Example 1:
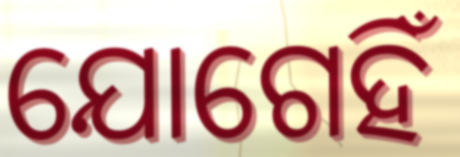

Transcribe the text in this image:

ଯୋଗେହିଁ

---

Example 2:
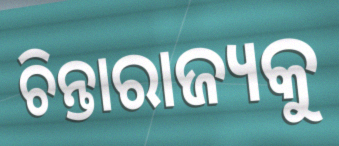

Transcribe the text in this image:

ଚିନ୍ତାରାଜ୍ୟକୁ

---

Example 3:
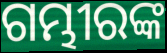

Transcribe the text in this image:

ଗମ୍ଭୀରଙ୍କ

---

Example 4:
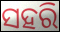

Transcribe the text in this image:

ସହରି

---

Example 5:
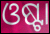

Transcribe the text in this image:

ଓଷ୍ଟା